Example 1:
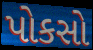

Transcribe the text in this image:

પોકસો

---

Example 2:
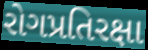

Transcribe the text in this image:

રોગપ્રતિરક્ષા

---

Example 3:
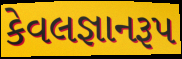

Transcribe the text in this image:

કેવલજ્ઞાનરૂપ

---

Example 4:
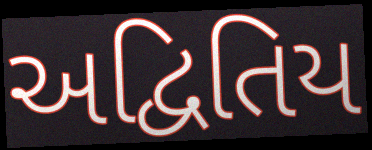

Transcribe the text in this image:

અદ્વિતિય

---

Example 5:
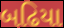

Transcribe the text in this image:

બઢિયા